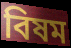
বিষম